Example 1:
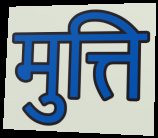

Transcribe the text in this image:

मुत्ति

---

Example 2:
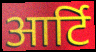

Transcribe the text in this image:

आर्टि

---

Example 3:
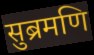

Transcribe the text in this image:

सुब्रमणि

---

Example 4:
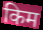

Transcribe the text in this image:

किम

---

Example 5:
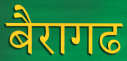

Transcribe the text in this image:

बैरागढ